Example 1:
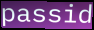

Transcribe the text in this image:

passid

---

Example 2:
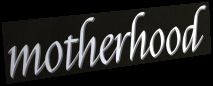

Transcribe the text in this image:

motherhood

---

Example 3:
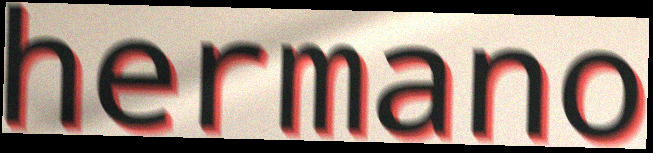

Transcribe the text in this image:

hermano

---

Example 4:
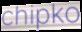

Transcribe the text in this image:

chipko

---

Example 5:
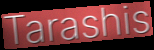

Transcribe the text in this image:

Tarashis